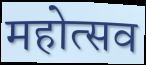
महोत्सव